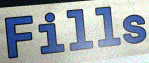
Fills